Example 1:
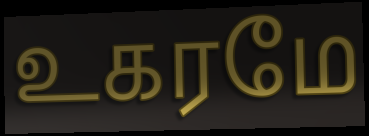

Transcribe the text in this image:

உகரமே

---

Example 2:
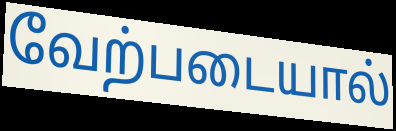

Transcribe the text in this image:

வேற்படையால்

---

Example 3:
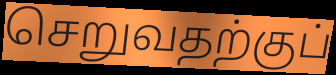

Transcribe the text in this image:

செறுவதற்குப்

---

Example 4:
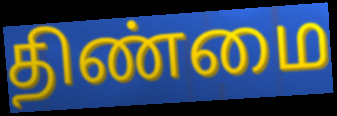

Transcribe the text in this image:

திண்மை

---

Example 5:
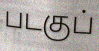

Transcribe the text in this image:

படகுப்